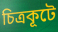
চিত্রকূটে